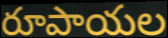
రూపాయల